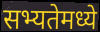
सभ्यतेमध्ये